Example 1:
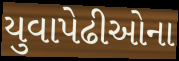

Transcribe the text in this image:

યુવાપેઢીઓના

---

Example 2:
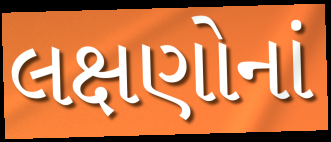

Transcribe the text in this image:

લક્ષણોનાં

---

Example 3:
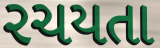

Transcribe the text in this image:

રચયતા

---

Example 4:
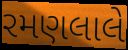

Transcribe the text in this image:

રમણલાલે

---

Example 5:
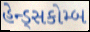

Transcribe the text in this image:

હેન્ડ્સકોમ્બ